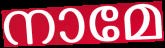
നാമേ